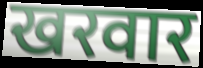
खरवार